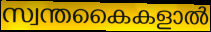
സ്വന്തകൈകളാൽ